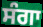
ਸੰਗਾ